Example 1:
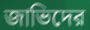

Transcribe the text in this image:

জাভিদের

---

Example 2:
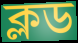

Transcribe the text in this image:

ক্লড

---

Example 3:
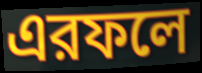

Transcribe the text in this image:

এরফলে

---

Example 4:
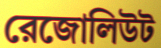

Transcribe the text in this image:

রেজোলিউট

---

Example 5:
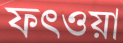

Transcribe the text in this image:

ফৎওয়া